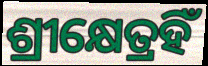
ଶ୍ରୀକ୍ଷେତ୍ରହିଁ